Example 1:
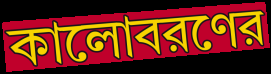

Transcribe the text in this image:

কালোবরণের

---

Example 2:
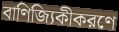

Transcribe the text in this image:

বাণিজ্যিকীকরণে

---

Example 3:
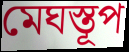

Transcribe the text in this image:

মেঘস্তূপ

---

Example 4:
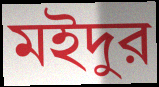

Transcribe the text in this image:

মইদুর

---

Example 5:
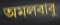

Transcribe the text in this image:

অমলবাবু